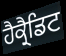
ਹੈਕ੍ਰੈਡਿਟ